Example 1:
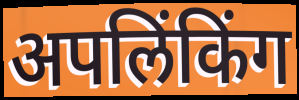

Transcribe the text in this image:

अपलिंकिंग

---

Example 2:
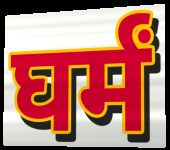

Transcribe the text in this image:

घर्मं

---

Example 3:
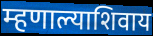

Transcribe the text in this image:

म्हणाल्याशिवाय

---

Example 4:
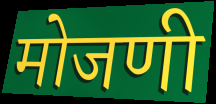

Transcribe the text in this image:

मोजणी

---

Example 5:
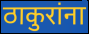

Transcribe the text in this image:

ठाकुरांना